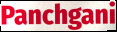
Panchgani